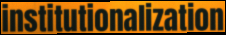
institutionalization